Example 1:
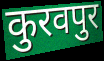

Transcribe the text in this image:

कुरवपुर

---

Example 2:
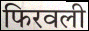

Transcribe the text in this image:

फिरवली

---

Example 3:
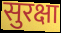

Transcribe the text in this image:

सुरक्षा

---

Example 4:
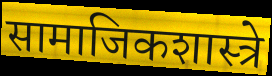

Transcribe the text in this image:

सामाजिकशास्त्रे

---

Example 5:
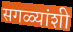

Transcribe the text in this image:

सगळ्यांशी